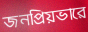
জনপ্ৰিয়ভাৱে